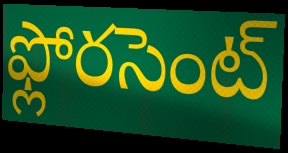
ఫ్లోరసెంట్